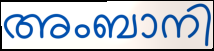
അംബാനി